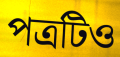
পত্রটিও